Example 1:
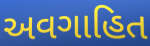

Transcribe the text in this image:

અવગાહિત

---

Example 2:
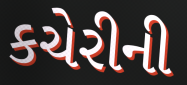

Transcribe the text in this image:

કચેરીની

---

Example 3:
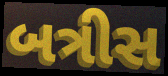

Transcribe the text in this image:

બત્રીસ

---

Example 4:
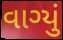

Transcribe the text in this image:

વાગ્યું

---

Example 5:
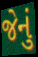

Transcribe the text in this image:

જેનું